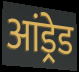
आंड्रेड